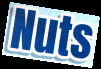
Nuts